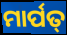
ମାର୍ପତ୍